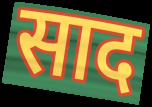
साद